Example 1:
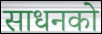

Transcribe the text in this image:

साधनको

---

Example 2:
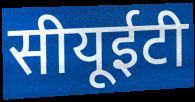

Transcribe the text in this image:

सीयूईटी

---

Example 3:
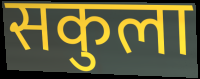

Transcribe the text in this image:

सकुला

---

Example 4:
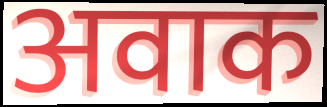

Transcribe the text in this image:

अवाक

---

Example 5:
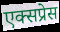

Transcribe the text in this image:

एक्सप्रेस